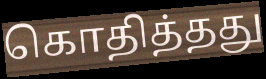
கொதித்தது